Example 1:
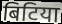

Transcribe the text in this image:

बिटिया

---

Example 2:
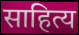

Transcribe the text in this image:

साहित्य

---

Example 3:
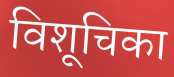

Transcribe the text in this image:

विशूचिका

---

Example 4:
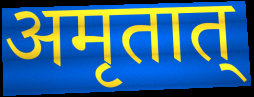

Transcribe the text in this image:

अमृतात्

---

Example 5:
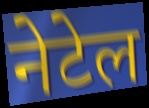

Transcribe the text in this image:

नेटेल